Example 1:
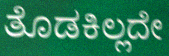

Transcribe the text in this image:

ತೊಡಕಿಲ್ಲದೇ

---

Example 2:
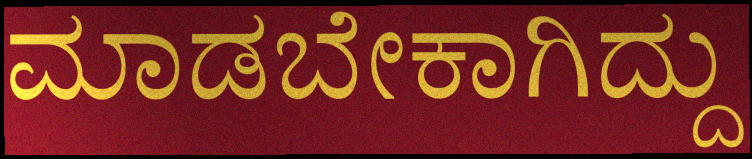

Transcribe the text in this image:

ಮಾಡಬೇಕಾಗಿದ್ದು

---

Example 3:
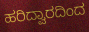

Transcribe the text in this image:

ಹರಿದ್ವಾರದಿಂದ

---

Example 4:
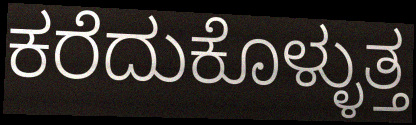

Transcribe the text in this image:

ಕರೆದುಕೊಳ್ಳುತ್ತ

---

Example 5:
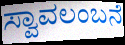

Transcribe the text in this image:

ಸ್ವಾವಲಂಬನೆ